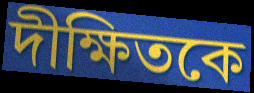
দীক্ষিতকে